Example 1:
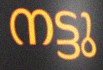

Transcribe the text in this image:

നട്ടു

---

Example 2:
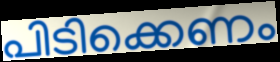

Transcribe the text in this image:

പിടിക്കെണം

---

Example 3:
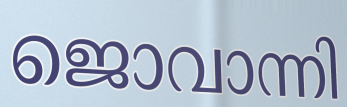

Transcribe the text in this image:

ജൊവാന്നി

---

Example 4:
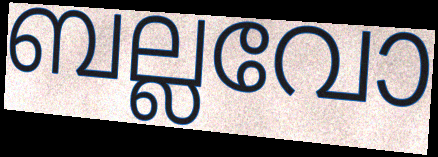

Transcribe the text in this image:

ബല്ലവോ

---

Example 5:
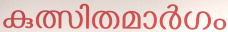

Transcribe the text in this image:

കുത്സിതമാർഗം